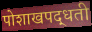
पोशाखपद्धती